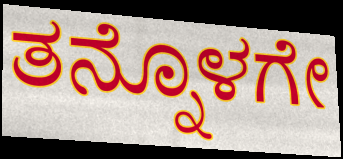
ತನ್ನೊಳಗೇ